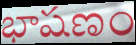
భాషణం